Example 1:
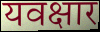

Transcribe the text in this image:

यवक्षार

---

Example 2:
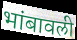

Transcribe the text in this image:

भांबावली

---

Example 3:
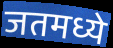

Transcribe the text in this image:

जतमध्ये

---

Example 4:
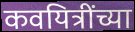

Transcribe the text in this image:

कवयित्रींच्या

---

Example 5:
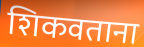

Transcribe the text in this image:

शिकवताना